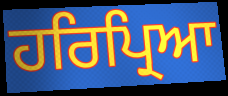
ਹਰਿਪ੍ਰਿਆ